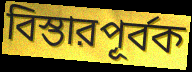
বিস্তারপূর্বক